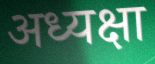
अध्यक्षा